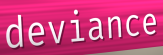
deviance